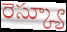
రెస్క్యూ